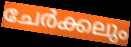
ചേർക്കലും